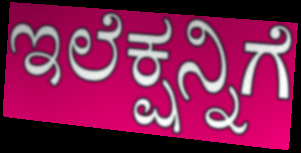
ಇಲೆಕ್ಷನ್ನಿಗೆ